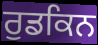
ਰੁਡਕਿਨ